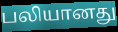
பலியானது